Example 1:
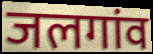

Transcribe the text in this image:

जलगांव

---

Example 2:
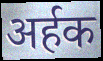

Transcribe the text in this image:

अर्हक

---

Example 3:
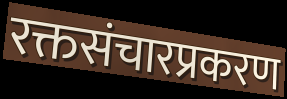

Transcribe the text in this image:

रक्तसंचारप्रकरण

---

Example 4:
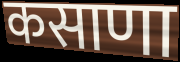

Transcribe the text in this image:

कसाणा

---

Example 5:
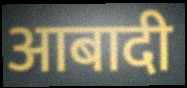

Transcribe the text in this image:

आबादी